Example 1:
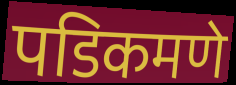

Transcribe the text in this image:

पडिकमणे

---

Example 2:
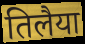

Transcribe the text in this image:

तिलैया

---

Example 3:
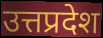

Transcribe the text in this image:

उत्तप्रदेश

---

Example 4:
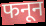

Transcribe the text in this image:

फनून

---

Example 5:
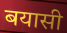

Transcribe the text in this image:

बयासी